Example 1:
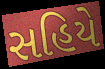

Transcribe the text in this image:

સહિયે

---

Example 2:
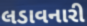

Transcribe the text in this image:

લડાવનારી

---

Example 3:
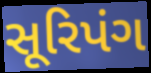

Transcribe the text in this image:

સૂરિપંગ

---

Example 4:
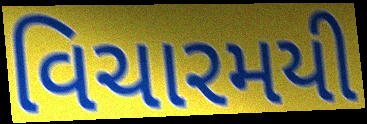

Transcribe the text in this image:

વિચારમયી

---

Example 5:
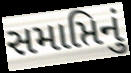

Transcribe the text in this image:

સમાપ્તિનું